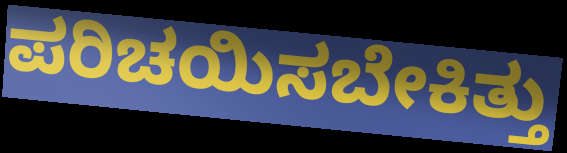
ಪರಿಚಯಿಸಬೇಕಿತ್ತು